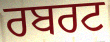
ਰਬਰਟ